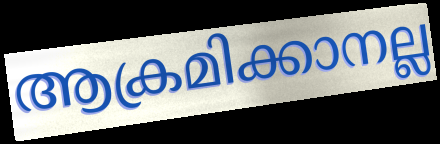
ആക്രമിക്കാനല്ല